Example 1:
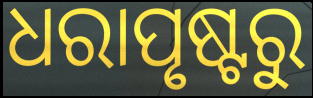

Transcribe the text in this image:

ଧରାପୃଷ୍ଟରୁ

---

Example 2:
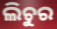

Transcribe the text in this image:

ଲିଚୁର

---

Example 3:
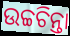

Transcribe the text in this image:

ଉଚ୍ଚଚିନ୍ତା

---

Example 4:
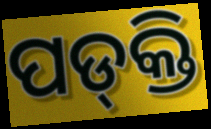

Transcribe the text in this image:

ପଡ୍‌କ୍ତି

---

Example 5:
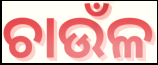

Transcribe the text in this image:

ଚାଉଁଳ